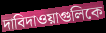
দাবিদাওয়াগুলিকে